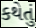
કથેતું